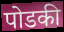
पोडकी